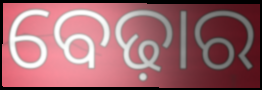
ବେଢ଼ାର